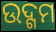
ଉଦ୍ଗମ